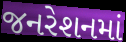
જનરેશનમાં